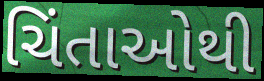
ચિંતાઓથી